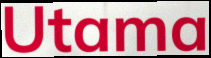
Utama